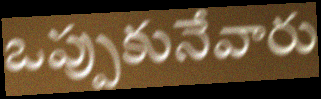
ఒప్పుకునేవారు